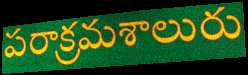
పరాక్రమశాలురు